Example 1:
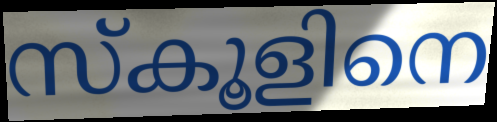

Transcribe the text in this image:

സ്കൂളിനെ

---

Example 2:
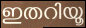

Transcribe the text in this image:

ഇതറിയൂ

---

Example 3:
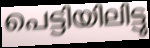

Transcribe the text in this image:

പെട്ടിയിലിട്ടു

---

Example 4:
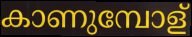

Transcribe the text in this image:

കാണുമ്പോള്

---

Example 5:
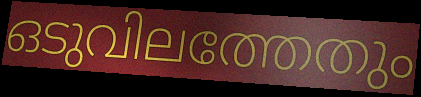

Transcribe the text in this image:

ഒടുവിലത്തേതും